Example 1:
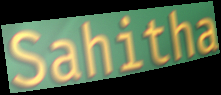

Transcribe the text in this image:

Sahitha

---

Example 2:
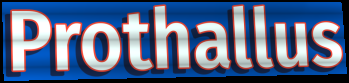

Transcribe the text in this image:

Prothallus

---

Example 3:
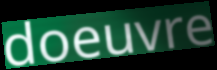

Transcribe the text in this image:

doeuvre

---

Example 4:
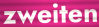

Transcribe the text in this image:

zweiten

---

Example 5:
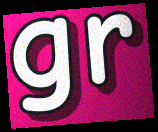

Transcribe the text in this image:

gr